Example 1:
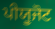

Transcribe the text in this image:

ਪੀਯੂਜੋਟ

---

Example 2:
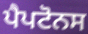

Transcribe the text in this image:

ਪੈਪਟੋਨਸ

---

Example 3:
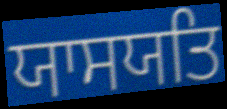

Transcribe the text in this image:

ਯਾਸਯਤਿ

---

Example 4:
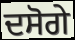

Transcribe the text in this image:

ਦਸੋਗੇ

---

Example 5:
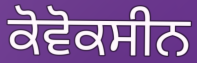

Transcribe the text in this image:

ਕੋਵੋਕਸੀਨ